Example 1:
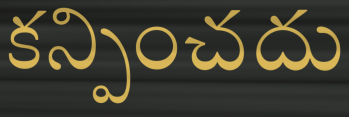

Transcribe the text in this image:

కన్పించదు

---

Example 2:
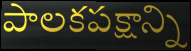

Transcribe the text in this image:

పాలకపక్షాన్ని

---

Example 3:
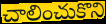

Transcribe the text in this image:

చాలించుకొని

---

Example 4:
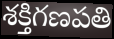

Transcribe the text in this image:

శక్తిగణపతి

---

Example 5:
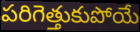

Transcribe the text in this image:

పరిగెత్తుకుపోయే